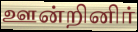
ஊன்றினிர்